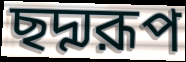
ছদ্মরূপ